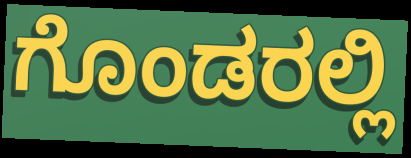
ಗೊಂಡರಲ್ಲಿ